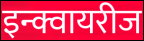
इन्क्वायरीज